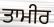
ਤਾਮੀਰ